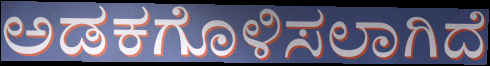
ಅಡಕಗೊಳಿಸಲಾಗಿದೆ